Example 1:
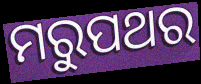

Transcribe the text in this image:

ମରୁପଥର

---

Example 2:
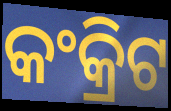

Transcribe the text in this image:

କଂକ୍ରିଟ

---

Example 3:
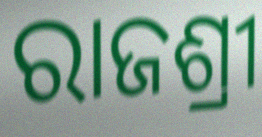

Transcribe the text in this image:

ରାଜଶ୍ରୀ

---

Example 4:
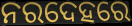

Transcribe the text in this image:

ନରଦେହରେ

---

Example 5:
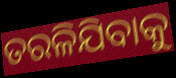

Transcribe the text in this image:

ତରଳିଯିବାକୁ